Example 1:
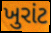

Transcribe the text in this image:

ખુરાંટ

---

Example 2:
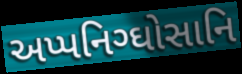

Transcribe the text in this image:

અપ્પનિગ્ઘોસાનિ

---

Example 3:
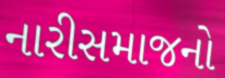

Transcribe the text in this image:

નારીસમાજનો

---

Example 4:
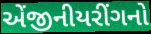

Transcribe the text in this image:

એંજીનીયરીંગનો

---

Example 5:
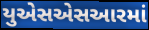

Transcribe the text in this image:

યુએસએસઆરમાં